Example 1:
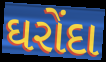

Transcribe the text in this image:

ઘરોંદા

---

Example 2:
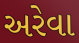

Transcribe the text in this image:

અરેવા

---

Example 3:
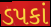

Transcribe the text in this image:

ડપકાં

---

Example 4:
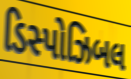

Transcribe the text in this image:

ડિસ્પોઝિબલ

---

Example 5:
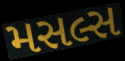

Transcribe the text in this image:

મસલ્સ